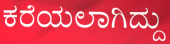
ಕರೆಯಲಾಗಿದ್ದು